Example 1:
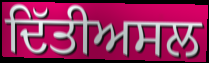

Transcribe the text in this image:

ਦਿੱਤੀਅਸਲ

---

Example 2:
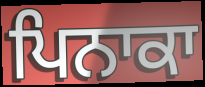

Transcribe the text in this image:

ਪਿਨਾਕਾ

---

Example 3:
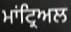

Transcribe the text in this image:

ਮਾਂਟ੍ਰਿਅਲ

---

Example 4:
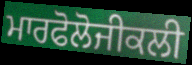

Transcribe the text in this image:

ਮਾਰਫੋਲੋਜੀਕਲੀ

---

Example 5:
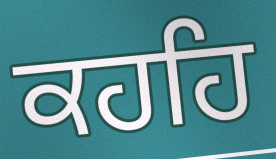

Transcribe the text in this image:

ਕਹਹਿ